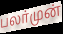
பலர்முன்